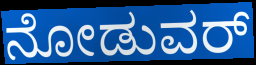
ನೋಡುವರ್